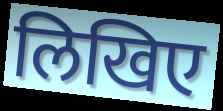
लिखिए